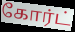
கோர்ட்